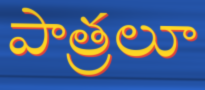
పాత్రలూ